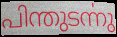
പിന്തുടൎന്നു